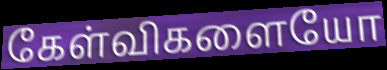
கேள்விகளையோ